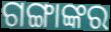
ଗଙ୍ଗାଙ୍କର